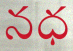
నధ